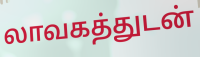
லாவகத்துடன்